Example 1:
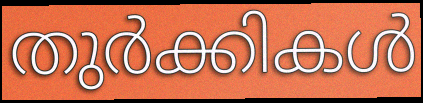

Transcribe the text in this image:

തുർക്കികൾ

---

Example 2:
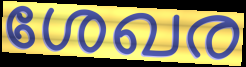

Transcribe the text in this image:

ശേഖര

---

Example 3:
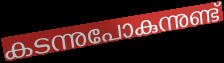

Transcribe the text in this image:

കടന്നുപോകുന്നുണ്ട്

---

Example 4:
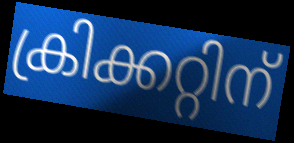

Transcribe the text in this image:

ക്രിക്കറ്റിന്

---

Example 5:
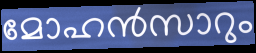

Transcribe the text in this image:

മോഹൻസാറും